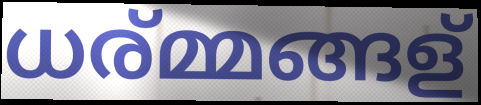
ധര്മ്മങ്ങള്